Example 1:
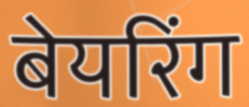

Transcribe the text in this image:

बेयरिंग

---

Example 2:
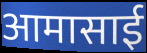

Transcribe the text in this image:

आमासाई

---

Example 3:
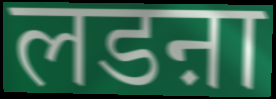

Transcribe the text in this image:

लडऩा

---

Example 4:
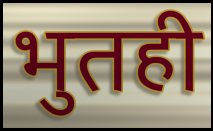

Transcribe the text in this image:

भुतही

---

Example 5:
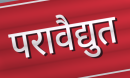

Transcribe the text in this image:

परावैद्युत